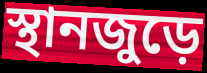
স্থানজুড়ে